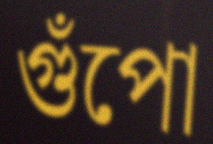
গুঁপো